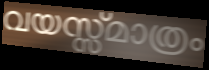
വയസ്സ്മാത്രം